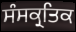
ਸੰਸਕ੍ਰਤਿਕ